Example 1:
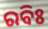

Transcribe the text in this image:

ରବିଃ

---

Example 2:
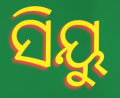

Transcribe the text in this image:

ସିୟୁ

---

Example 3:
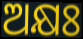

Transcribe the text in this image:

ଅକ୍ଷଃ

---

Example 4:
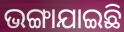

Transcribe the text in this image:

ଭଙ୍ଗାଯାଇଛି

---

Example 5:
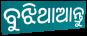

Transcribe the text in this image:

ବୁଝିଥାଆନ୍ତୁ